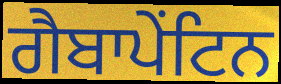
ਗੈਬਾਪੇਂਟਿਨ